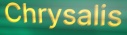
Chrysalis